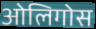
ओलिगोस